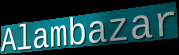
Alambazar